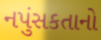
નપુંસકતાનો